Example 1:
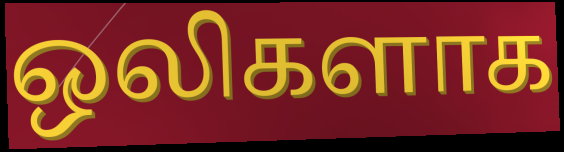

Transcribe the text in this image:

ஒலிகளாக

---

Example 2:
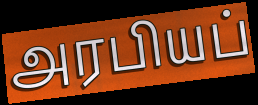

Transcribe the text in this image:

அரபியப்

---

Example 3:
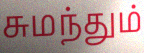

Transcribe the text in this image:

சுமந்தும்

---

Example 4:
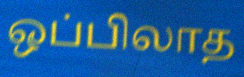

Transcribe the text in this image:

ஒப்பிலாத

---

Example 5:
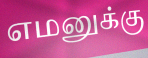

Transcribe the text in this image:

எமனுக்கு